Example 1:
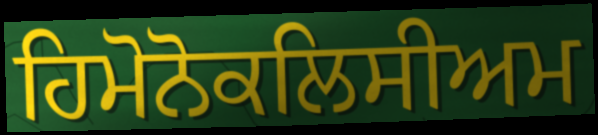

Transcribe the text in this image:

ਹਿਮੋਨੋਕਲਿਸੀਅਮ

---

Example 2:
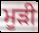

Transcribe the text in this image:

ਮੂੜੀ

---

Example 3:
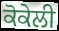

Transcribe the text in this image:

ਕੋਕੇਲੀ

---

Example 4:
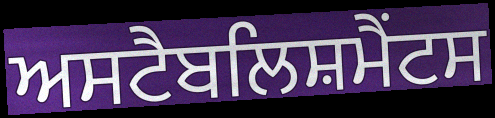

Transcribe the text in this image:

ਅਸਟੈਬਲਿਸ਼ਮੈਂਟਸ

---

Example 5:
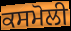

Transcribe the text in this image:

ਕਸਮੋਲੀ